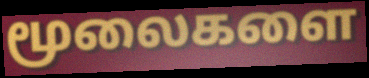
மூலைகளை